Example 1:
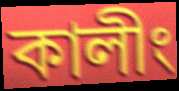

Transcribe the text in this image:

কালীং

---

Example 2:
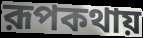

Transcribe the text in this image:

রূপকথায়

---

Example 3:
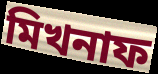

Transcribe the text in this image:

মিখনাফ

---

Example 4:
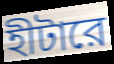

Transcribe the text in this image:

হীটারে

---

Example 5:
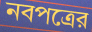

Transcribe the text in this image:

নবপত্রের